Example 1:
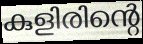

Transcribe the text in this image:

കുളിരിന്റെ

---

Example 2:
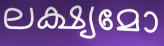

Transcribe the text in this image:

ലക്ഷ്യമോ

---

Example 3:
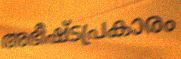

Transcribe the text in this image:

അഭീഷ്ടപ്രകാരം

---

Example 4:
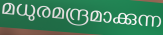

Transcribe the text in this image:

മധുരമന്ദ്രമാക്കുന്ന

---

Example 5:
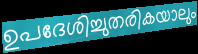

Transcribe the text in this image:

ഉപദേശിച്ചുതരികയാലും